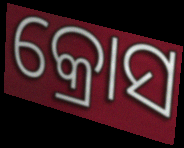
କ୍ରୋସ